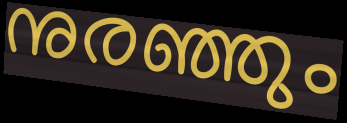
നുരഞ്ഞും